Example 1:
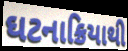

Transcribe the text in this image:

ઘટનાક્રિયાથી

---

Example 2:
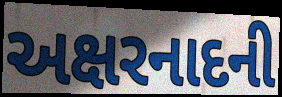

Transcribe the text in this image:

અક્ષરનાદની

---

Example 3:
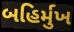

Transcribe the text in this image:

બહિર્મુખ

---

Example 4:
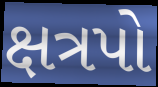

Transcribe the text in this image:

ક્ષત્રપો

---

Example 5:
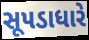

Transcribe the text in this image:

સૂપડાધારે